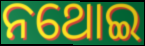
ନଥୋଇ